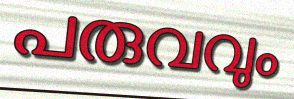
പരുവവും